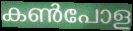
കൺപോള